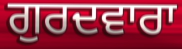
ਗੁਰਦਵਾਰਾ